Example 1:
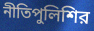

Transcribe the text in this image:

নীতিপুলিশির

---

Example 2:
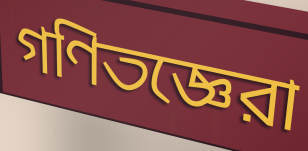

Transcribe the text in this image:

গণিতজ্ঞেরা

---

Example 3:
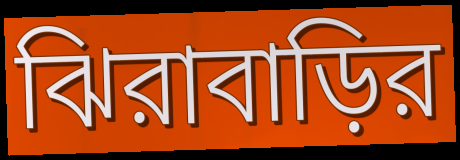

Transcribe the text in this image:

ঝিরাবাড়ির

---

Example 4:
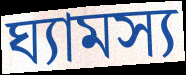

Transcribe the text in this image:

ঘ্যামস্য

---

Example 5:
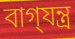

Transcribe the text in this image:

বাগ্‌যন্ত্র